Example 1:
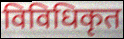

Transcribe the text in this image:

विविधिकृत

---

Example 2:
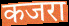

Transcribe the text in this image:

कजरा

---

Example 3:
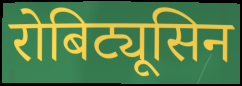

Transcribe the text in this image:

रोबिट्यूसिन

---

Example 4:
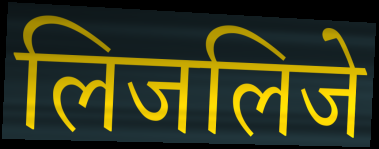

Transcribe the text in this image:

लिजलिजे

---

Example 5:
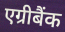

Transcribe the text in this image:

एग्रीबैंक